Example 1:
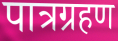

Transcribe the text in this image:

पात्रग्रहण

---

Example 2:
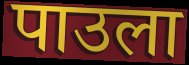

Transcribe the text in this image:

पाउला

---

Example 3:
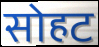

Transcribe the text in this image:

सोहट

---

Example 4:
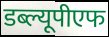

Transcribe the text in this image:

डब्ल्यूपीएफ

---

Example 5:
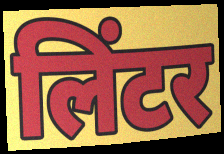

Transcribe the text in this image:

लिंटर